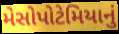
મેસોપોટેમિયાનું